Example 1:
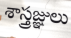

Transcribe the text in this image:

శాస్త్రజ్ఞులు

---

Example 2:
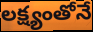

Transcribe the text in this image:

లక్ష్యంతోనే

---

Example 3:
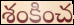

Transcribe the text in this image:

శంకించ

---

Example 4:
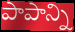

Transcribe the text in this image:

పాపాన్ని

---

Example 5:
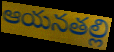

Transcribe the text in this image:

ఆయనతల్లి